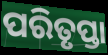
ପରିତୃପ୍ତା